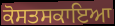
ਕੋਸਤਸਕਾਇਆ